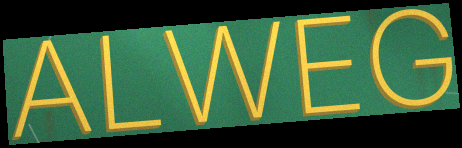
ALWEG